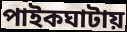
পাইকঘাটায়